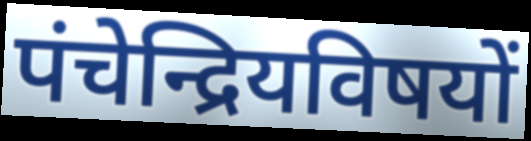
पंचेन्द्रियविषयों